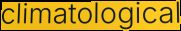
climatological